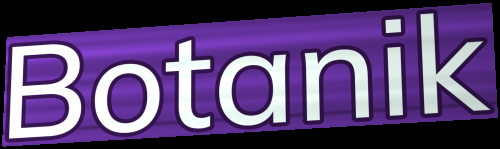
Botanik